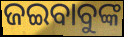
ଜଇବାବୁଙ୍କ